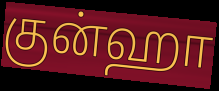
குன்ஹா